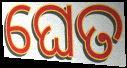
ଘେତ